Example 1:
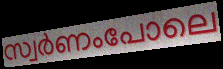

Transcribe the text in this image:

സ്വർണംപോലെ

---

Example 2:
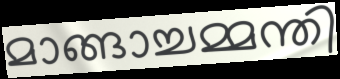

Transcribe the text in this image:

മാങ്ങാച്ചമ്മന്തി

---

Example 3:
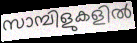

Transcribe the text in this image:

സാമ്പിളുകളിൽ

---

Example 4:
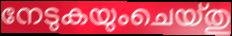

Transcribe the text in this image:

നേടുകയുംചെയ്തു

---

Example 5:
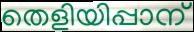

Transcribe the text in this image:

തെളിയിപ്പാന്